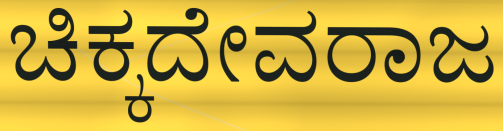
ಚಿಕ್ಕದೇವರಾಜ